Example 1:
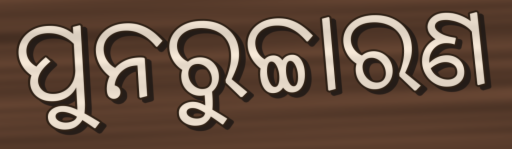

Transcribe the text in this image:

ପୁନରୁଚ୍ଚାରଣ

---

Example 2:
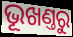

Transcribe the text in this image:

ଭୂଖଣ୍ତରୁ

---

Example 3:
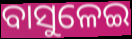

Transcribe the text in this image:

ବାସୁଳେଇ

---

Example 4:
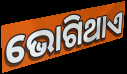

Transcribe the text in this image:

ଭୋଗିଥାଏ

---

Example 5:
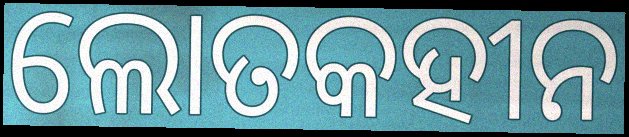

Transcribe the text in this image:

ଲୋତକହୀନ